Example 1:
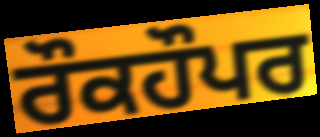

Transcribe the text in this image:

ਰੌਕਹੌਪਰ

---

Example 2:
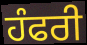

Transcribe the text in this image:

ਹੰਫਰੀ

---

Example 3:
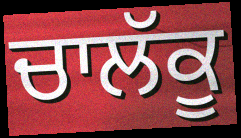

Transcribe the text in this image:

ਚਾਲੱਕੂ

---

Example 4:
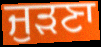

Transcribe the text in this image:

ਜੁੜਣਾ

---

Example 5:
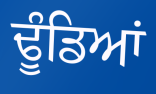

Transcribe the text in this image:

ਢੂੰਡਿਆਂ